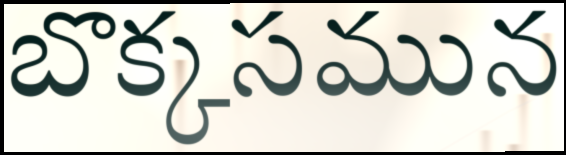
బొక్కసమున